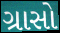
ગ્રાસો